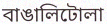
বাঙালিটোলা